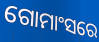
ଗୋମାଂସରେ